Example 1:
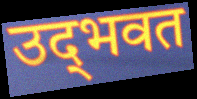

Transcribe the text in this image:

उद्‌भवत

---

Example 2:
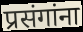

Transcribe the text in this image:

प्रसंगांना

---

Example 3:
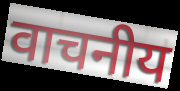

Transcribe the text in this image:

वाचनीय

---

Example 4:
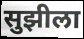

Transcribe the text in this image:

सुझीला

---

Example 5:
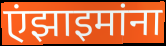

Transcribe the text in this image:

एंझाइमांना